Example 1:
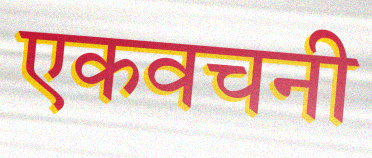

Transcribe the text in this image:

एकवचनी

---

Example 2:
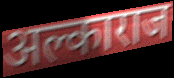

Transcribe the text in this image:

अल्काराज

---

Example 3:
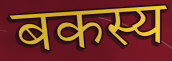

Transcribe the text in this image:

बकस्य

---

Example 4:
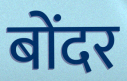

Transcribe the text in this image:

बोंदर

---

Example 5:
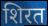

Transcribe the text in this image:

शिरत